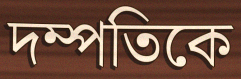
দম্পতিকে